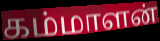
கம்மாளன்